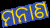
ମନାଣ